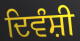
ਦਿਵੰਸ਼ੀ